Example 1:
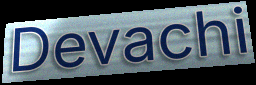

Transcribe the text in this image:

Devachi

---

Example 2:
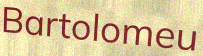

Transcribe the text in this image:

Bartolomeu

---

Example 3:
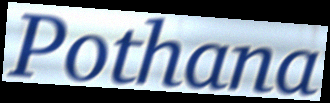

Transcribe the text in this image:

Pothana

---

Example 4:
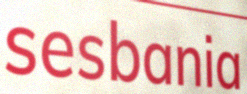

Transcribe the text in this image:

sesbania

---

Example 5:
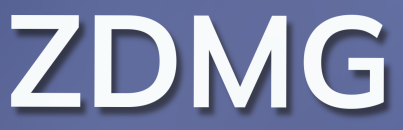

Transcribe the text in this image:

ZDMG